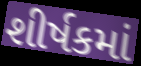
શીર્ષકમાં